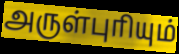
அருள்புரியும்